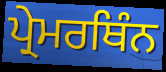
ਪ੍ਰੇਮਰਥਿੰਨ